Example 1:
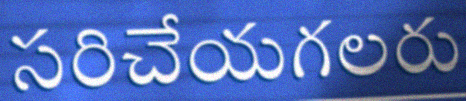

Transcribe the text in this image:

సరిచేయగలరు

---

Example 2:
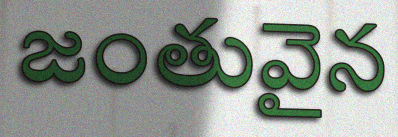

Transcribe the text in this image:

జంతువైన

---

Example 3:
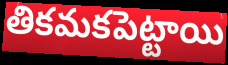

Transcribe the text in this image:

తికమకపెట్టాయి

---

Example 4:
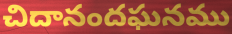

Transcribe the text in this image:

చిదానందఘనము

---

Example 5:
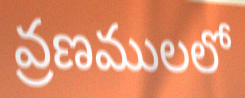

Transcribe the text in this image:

వ్రణములలో